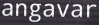
angavar